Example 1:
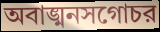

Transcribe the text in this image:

অবাঙ্মনসগোচর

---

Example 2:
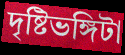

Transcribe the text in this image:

দৃষ্টিভঙ্গিটা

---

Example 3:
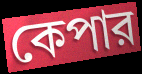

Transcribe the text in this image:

কেপার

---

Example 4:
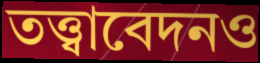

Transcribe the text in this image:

তত্ত্বাবেদনও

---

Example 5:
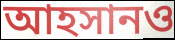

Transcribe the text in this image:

আহসানও